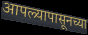
आपल्यापासूनच्या